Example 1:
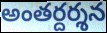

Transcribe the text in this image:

అంతర్దర్శన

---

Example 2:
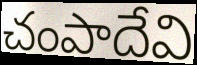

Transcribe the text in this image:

చంపాదేవి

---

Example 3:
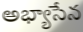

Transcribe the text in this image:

అభ్యాసేన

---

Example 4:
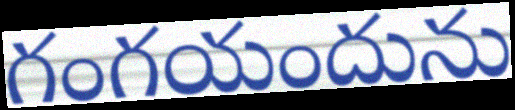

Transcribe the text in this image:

గంగయందును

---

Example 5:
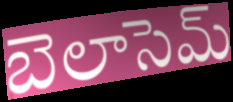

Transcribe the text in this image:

బెలాసెమ్